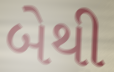
બેથી